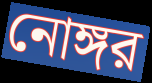
নোঙ্গর